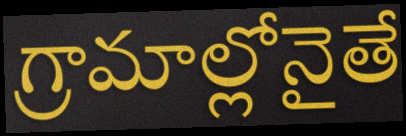
గ్రామాల్లోనైతే